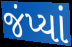
જંપ્યાં